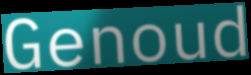
Genoud